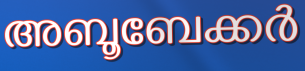
അബൂബേക്കർ